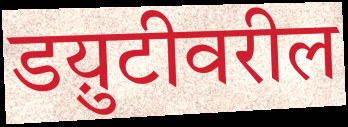
डय़ुटीवरील